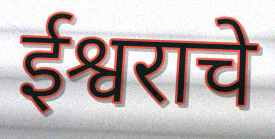
ईश्वराचे